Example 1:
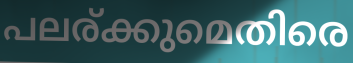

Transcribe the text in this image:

പലര്ക്കുമെതിരെ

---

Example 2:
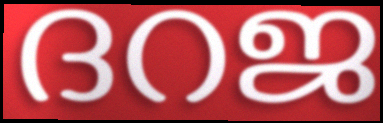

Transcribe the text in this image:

ദറജ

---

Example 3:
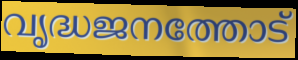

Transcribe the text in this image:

വൃദ്ധജനത്തോട്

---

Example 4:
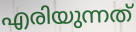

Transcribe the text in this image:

എരിയുന്നത്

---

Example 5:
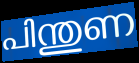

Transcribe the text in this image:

പിന്തുണ